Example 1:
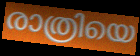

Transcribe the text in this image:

രാത്രിയെ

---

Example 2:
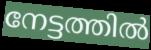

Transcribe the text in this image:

നേട്ടത്തിൽ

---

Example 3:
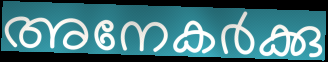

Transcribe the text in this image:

അനേകർക്കു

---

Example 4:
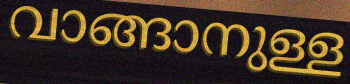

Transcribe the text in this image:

വാങ്ങാനുള്ള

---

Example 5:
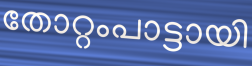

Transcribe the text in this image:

തോറ്റംപാട്ടായി